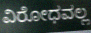
ವಿರೋಧವಲ್ಲ